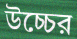
উচ্চের